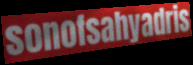
sonofsahyadris